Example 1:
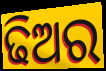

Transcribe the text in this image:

ଢିଅର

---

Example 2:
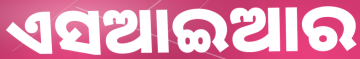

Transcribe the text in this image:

ଏସଆଇଆର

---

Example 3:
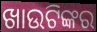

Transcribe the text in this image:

ଖାଉଟିଙ୍କର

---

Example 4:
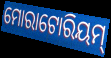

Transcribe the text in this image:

ମୋରାଟୋରିୟମ୍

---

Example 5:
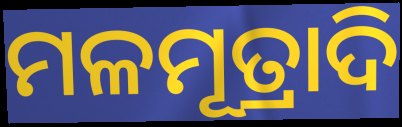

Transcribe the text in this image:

ମଳମୂତ୍ରାଦି